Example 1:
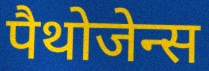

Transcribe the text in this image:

पैथोजेन्स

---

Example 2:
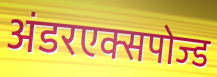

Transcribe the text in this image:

अंडरएक्सपोज्ड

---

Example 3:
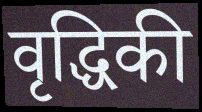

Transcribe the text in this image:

वृद्धिकी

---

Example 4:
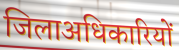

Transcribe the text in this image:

जिलाअधिकारियों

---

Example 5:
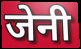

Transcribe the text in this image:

जेनी